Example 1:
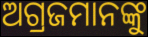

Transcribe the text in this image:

ଅଗ୍ରଜମାନଙ୍କୁ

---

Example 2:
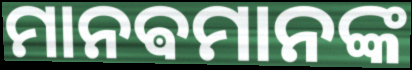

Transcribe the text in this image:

ମାନଵମାନଙ୍କ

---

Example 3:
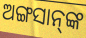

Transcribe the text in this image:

ଅଙ୍ଗସାନ୍‌ଙ୍କ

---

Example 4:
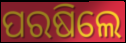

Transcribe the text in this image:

ପରଷିଲେ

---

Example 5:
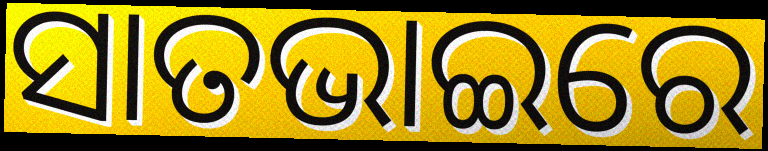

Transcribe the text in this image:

ସାତଭାଇରେ